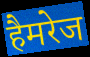
हैमरेज